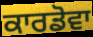
ਕਾਰਡੋਵਾ